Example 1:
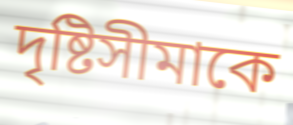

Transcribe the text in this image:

দৃষ্টিসীমাকে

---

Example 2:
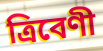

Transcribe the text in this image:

ত্রিবেণী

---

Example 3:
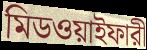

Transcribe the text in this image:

মিডওয়াইফারী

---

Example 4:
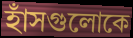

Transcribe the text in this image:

হাঁসগুলোকে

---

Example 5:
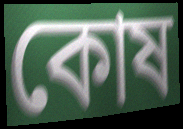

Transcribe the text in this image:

কোষ